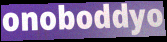
onoboddyo